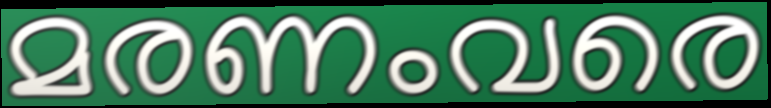
മരണംവരെ